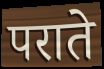
पराते